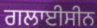
ਗਲਾਈਸੀਨ